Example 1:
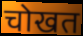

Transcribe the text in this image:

चोखत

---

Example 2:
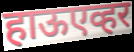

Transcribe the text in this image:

हाऊएव्हर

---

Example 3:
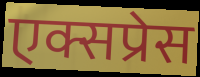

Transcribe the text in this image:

एक्सप्रेस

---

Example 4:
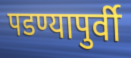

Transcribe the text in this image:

पडण्यापुर्वी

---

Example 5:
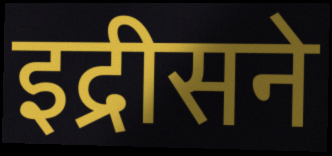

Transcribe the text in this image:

इद्रीसने